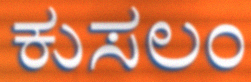
ಕುಸಲಂ